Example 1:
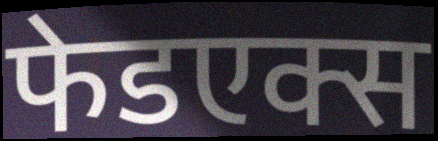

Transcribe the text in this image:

फेडएक्स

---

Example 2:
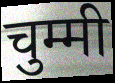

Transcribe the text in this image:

चुम्मी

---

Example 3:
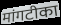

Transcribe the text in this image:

मांगटीका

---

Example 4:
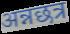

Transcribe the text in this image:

अन्नछत्र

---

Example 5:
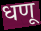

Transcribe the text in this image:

धणू